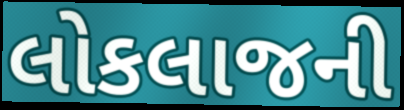
લોકલાજની